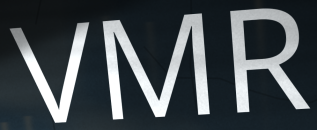
VMR